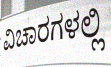
ವಿಚಾರಗಳಲ್ಲಿ